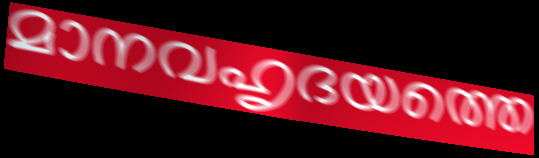
മാനവഹൃദയത്തെ